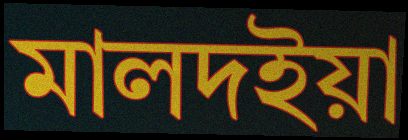
মালদইয়া